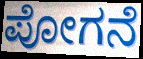
ಪೋಗನೆ